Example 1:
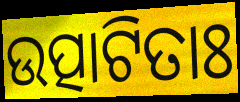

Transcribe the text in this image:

ଉତ୍ପାଟିତାଃ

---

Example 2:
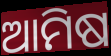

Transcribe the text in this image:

ଆମିଷ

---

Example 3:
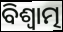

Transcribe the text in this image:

ବିଶ୍ୱାତ୍ମ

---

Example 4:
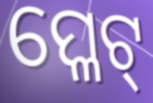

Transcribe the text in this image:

ପ୍ଳେଟ୍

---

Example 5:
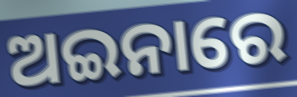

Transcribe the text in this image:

ଅଇନାରେ